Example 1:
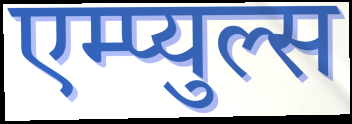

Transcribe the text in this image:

एम्प्युल्स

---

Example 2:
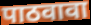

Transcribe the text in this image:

पाठवावा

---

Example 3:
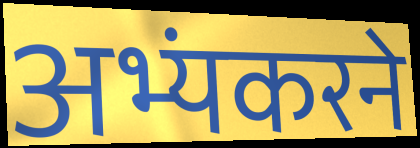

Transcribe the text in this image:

अभ्यंकरने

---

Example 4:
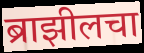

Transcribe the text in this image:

ब्राझीलचा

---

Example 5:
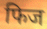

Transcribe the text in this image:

फिज